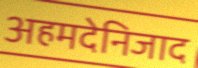
अहमदेनिजाद